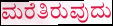
ಮರೆತಿರುವುದು